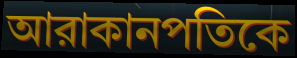
আরাকানপতিকে